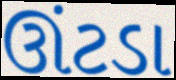
ઊંટડા